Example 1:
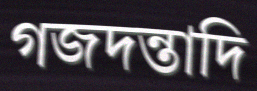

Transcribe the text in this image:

গজদন্তাদি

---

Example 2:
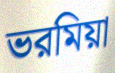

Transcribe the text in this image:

ভরমিয়া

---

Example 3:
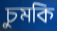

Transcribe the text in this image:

চুমকি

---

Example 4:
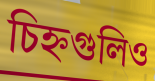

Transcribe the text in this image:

চিহ্নগুলিও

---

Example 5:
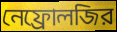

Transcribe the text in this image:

নেফ্রোলজির